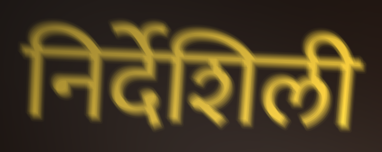
निर्देशिली